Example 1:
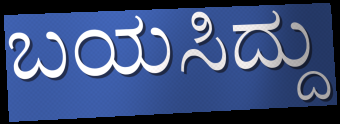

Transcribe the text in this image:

ಬಯಸಿದ್ದು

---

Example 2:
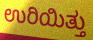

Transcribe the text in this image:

ಉರಿಯಿತ್ತು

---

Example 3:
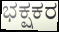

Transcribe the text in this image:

ಭಕ್ಷಕರ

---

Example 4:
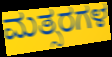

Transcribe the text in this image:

ಮತ್ಸರಗಳ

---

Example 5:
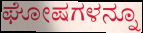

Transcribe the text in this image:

ಘೋಷಗಳನ್ನೂ